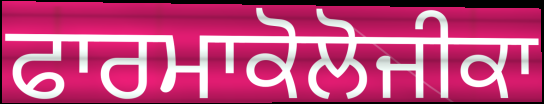
ਫਾਰਮਾਕੋਲੋਜੀਕਾ